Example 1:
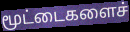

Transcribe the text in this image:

மூட்டைகளைச்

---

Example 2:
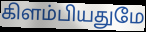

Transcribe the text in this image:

கிளம்பியதுமே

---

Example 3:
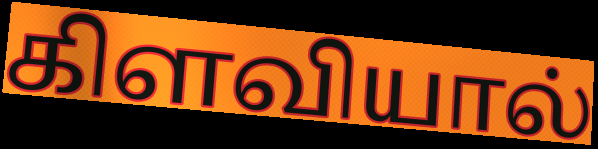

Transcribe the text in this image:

கிளவியால்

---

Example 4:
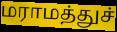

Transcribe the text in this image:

மராமத்துச்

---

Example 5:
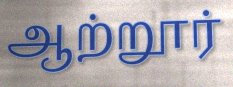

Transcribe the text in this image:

ஆற்றூர்